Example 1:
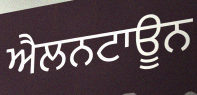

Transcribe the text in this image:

ਐਲਨਟਾਊਨ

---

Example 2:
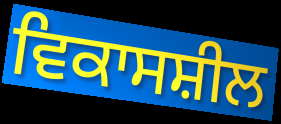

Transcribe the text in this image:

ਵਿਕਾਸਸ਼ੀਲ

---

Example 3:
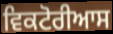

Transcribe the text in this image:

ਵਿਕਟੋਰੀਆਸ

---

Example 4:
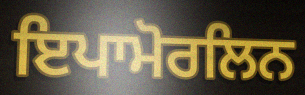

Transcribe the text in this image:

ਇਪਾਮੋਰਲਿਨ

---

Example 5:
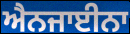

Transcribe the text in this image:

ਐਨਜਾਈਨਾ